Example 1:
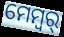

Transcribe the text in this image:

ମେମ୍ବର୍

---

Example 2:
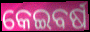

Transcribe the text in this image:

କେଇବର୍ଷ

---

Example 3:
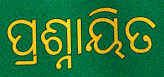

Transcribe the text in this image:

ପ୍ରଶ୍ନାୟିତ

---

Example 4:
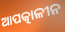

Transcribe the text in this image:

ଆପତ୍କାଳୀନ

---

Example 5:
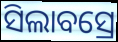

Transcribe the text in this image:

ସିଲାବସ୍ରେ